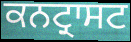
ਕਨਟ੍ਰਾਸਟ